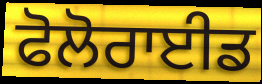
ਫੋਲੋਰਾਈਡ